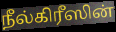
நீல்கிரீஸின்